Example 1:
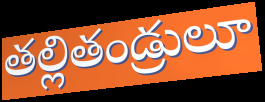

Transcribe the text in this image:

తల్లితండ్రులూ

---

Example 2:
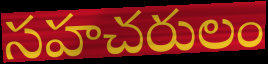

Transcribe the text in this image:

సహచరులం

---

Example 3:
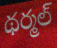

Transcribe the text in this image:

థర్మల్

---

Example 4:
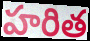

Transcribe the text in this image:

హరిత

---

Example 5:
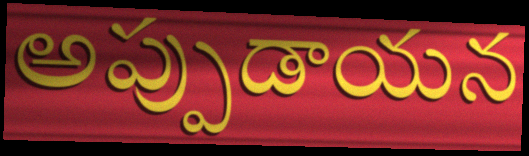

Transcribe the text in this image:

అప్పుడాయన